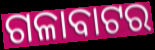
ଗଳାବାଟର